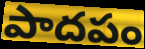
పాదపం